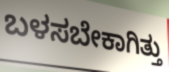
ಬಳಸಬೇಕಾಗಿತ್ತು